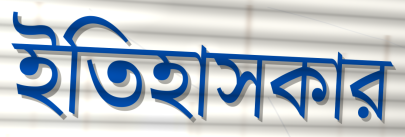
ইতিহাসকার